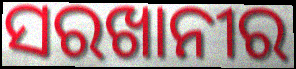
ସରଖାନୀର